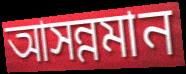
আসন্নমান